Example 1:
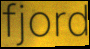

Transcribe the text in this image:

fjord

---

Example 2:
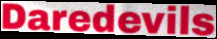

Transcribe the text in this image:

Daredevils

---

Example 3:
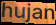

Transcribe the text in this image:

hujan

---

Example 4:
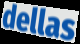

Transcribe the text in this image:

dellas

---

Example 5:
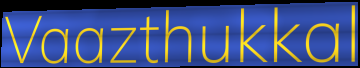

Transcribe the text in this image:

Vaazthukkal